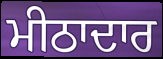
ਮੀਠਾਦਾਰ